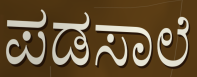
ಪಡಸಾಲೆ